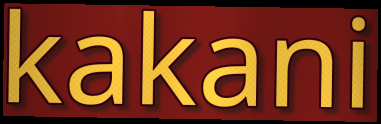
kakani